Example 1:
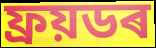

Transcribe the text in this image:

ফ্ৰয়ডৰ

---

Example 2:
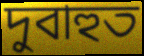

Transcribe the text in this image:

দুবাহুত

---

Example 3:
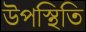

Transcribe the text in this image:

উপস্থিতি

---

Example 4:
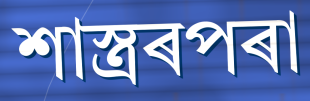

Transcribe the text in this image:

শাস্ত্ৰৰপৰা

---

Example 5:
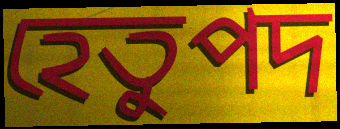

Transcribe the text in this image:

হেতুপদ